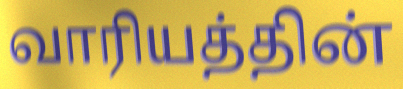
வாரியத்தின்